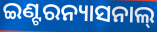
ଇଣ୍ଟରନ୍ୟାସନାଲ୍